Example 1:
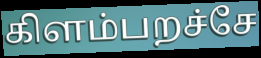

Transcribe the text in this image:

கிளம்பறச்சே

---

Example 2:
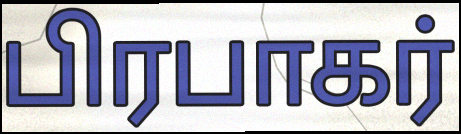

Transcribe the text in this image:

பிரபாகர்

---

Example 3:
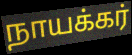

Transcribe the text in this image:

நாயக்கர்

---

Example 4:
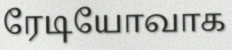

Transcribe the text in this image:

ரேடியோவாக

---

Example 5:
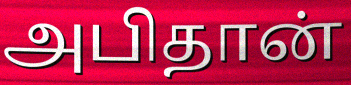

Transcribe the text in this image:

அபிதான்